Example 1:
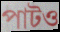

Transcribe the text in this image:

পাটও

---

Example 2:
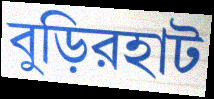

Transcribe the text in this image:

বুড়িরহাট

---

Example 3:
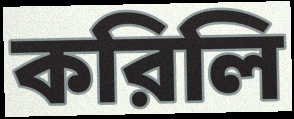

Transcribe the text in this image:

করিলি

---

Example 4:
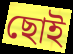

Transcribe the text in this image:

ছোই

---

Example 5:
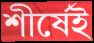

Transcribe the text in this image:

শীর্ষেই